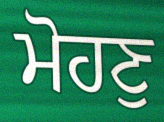
ਮੋਹਣੁ